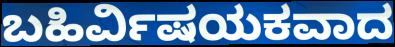
ಬಹಿರ್ವಿಷಯಕವಾದ